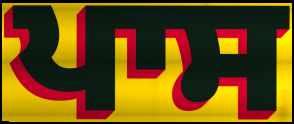
ਪਾਸ